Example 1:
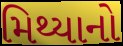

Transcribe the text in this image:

મિથ્યાનો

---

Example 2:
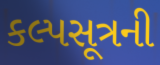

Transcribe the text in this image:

કલ્પસૂત્રની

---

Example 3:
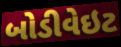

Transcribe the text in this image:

બોડીવેઇટ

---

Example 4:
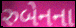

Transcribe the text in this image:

રુબેનના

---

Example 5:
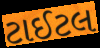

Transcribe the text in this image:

ટાઈટલ